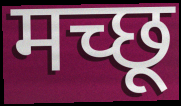
मच्छू